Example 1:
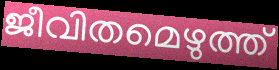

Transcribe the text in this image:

ജീവിതമെഴുത്ത്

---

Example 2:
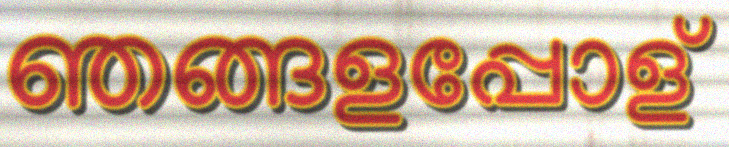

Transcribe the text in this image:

ഞങ്ങളപ്പോള്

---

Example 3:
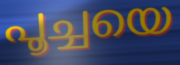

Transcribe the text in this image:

പൂച്ചയെ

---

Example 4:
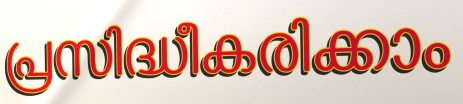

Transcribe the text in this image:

പ്രസിദ്ധീകരിക്കാം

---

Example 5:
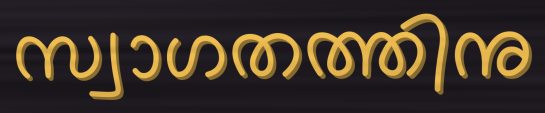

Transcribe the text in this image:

സ്വാഗതത്തിനു